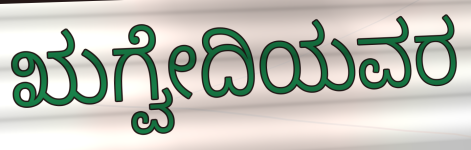
ಋಗ್ವೇದಿಯವರ